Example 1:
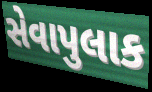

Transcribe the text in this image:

સેવાપુલાક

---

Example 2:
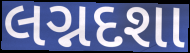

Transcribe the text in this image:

લગ્નદશા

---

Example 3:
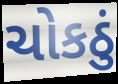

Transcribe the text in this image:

ચોકઠું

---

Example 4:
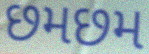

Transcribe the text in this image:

છમછમ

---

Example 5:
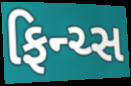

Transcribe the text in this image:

ફિન્ચ્સ